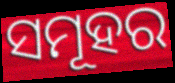
ସମୂହର